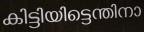
കിട്ടിയിട്ടെന്തിനാ